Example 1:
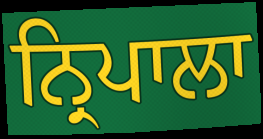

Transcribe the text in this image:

ਨ੍ਰਿਪਾਲਾ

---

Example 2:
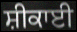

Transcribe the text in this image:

ਸ਼ੀਕਾਈ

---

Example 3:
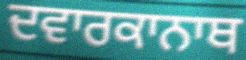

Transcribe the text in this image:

ਦਵਾਰਕਾਨਾਥ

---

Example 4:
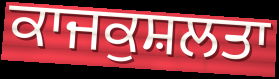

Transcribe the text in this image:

ਕਾਜਕੁਸ਼ਲਤਾ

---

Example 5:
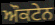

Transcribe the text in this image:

ਔਕਟੇਨ